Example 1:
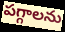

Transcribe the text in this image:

పగ్గాలను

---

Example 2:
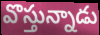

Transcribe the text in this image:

వొస్తున్నాడు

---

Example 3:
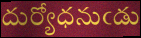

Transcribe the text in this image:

దుర్యోధనుఁడు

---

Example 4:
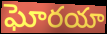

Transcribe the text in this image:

ఘోరయా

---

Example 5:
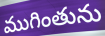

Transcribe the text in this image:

ముగింతును